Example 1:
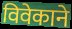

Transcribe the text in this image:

विवेकाने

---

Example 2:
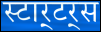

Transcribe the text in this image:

स्टार्टर्स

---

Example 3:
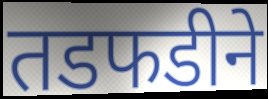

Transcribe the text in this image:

तडफडीने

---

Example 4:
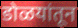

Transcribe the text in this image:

डोळयांतून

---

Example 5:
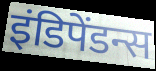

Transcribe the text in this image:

इंडिपेंडन्स